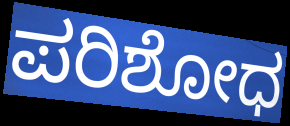
ಪರಿಶೋಧ